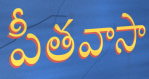
పీతవాసా